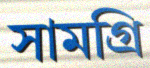
সামগ্রি